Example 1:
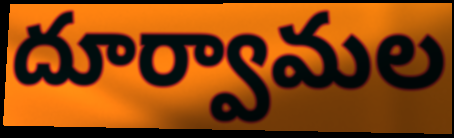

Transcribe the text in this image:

దూర్వామల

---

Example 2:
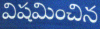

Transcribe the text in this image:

విషమించిన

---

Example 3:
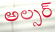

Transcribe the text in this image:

అల్సర్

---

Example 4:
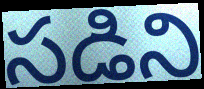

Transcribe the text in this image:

సడిని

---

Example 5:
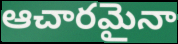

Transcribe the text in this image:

ఆచారమైనా